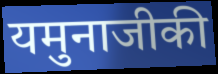
यमुनाजीकी